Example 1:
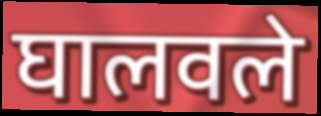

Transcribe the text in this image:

घालवले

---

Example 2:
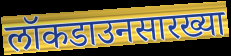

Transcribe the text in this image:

लॉकडाउनसारख्या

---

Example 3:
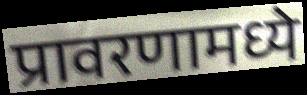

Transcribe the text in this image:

प्रावरणामध्ये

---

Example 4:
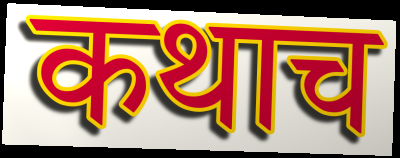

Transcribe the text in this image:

कथाच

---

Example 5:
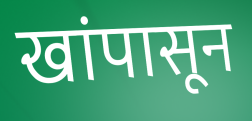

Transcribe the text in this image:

खांपासून